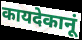
कायदेकानूं